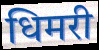
धिमरी